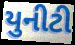
યુનીટી